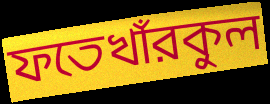
ফতেখাঁরকুল